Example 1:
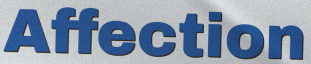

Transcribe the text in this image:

Affection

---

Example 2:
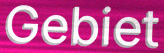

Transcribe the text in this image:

Gebiet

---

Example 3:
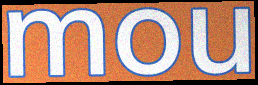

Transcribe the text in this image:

mou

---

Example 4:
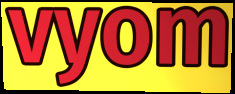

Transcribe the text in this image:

vyom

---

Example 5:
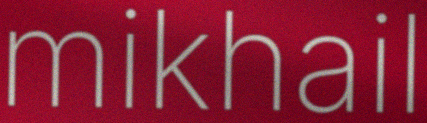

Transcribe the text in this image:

mikhail